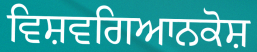
ਵਿਸ਼ਵਗਿਆਨਕੋਸ਼